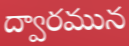
ద్వారమున